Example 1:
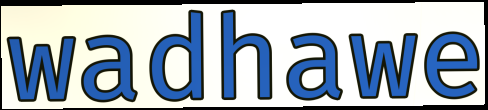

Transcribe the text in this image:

wadhawe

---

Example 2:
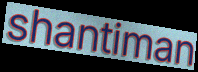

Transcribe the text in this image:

shantiman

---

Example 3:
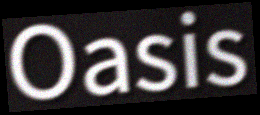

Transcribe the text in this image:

Oasis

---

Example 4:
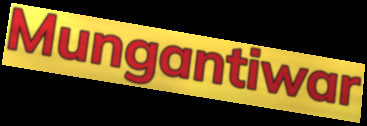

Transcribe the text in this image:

Mungantiwar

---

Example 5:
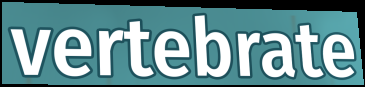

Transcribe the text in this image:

vertebrate